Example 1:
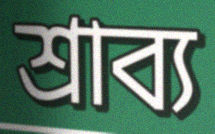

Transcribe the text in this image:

শ্রাব্য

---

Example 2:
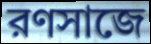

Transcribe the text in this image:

রণসাজে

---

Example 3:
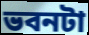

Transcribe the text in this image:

ভবনটা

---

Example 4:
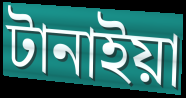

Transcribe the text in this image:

টানাইয়া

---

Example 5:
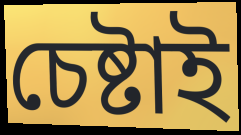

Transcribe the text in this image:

চেষ্টাই